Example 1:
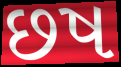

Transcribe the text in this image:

છષ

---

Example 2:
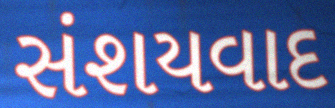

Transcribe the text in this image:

સંશયવાદ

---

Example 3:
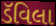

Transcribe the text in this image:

ડૅવિલા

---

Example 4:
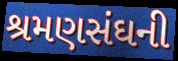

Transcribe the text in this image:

શ્રમણસંઘની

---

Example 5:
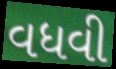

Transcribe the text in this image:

વધવી